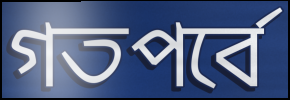
গতপর্বে